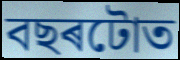
বছৰটোত